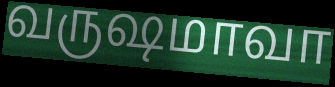
வருஷமாவா